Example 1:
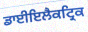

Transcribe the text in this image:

ਡਾਈਇਲੈਕਟ੍ਰਿਕ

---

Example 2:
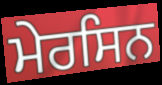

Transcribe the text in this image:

ਮੇਰਸਿਨ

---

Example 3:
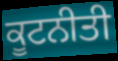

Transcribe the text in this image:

ਕੂਟਨੀਤੀ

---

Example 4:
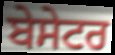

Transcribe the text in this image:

ਬੇਸੇਟਰ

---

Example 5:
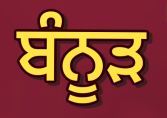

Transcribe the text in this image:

ਬੰਨੂੜ